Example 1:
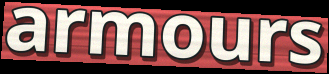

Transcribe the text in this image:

armours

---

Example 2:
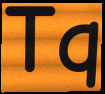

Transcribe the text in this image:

Tq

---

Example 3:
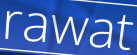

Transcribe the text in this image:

rawat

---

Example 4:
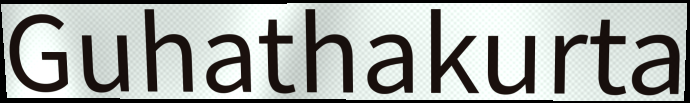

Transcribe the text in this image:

Guhathakurta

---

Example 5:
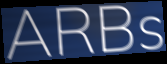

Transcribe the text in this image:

ARBs